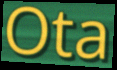
Ota